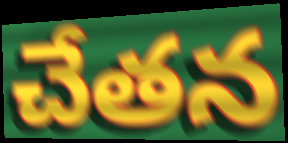
చేతన